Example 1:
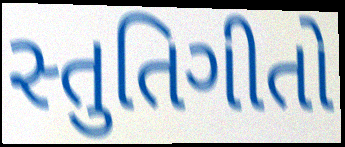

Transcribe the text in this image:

સ્તુતિગીતો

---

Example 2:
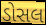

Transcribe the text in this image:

ડોસલ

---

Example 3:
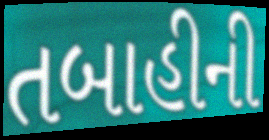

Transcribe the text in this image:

તબાહીની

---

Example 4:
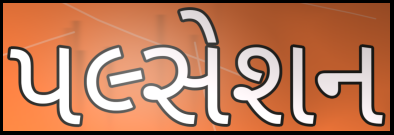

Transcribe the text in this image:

પલ્સેશન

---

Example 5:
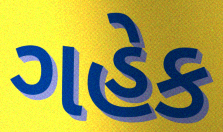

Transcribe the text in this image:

ગહેક